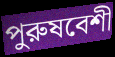
পুরুষবেশী